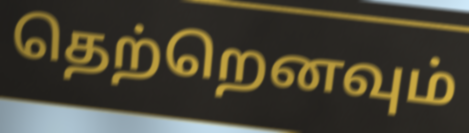
தெற்றெனவும்